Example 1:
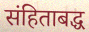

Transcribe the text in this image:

संहिताबद्ध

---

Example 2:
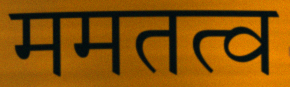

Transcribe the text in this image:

ममतत्व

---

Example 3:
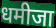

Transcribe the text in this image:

धमीजा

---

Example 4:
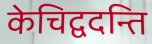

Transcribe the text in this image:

केचिद्वदन्ति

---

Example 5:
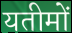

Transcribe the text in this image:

यतीमों